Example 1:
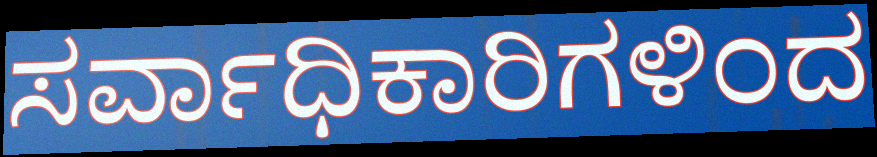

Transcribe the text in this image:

ಸರ್ವಾಧಿಕಾರಿಗಳಿಂದ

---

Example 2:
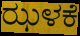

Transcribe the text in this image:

ಝಳಕೆ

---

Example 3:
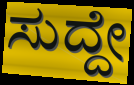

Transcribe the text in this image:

ಸುದ್ದೇ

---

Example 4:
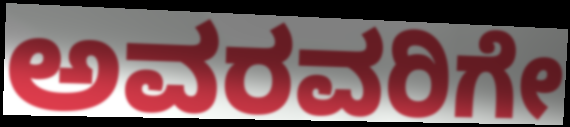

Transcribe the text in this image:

ಅವರವರಿಗೇ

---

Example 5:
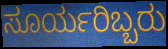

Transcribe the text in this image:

ಸೂರ್ಯರಿಬ್ಬರು